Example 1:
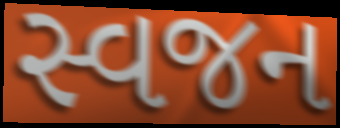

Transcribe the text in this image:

સ્વજન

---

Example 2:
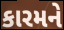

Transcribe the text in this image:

કારમને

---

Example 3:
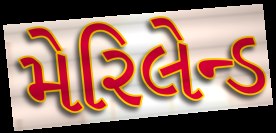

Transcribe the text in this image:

મેરિલેન્ડ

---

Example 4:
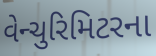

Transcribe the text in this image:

વેન્ચુરિમિટરના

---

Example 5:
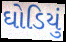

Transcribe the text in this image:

ઘોડિયું